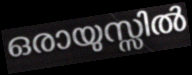
ഒരായുസ്സിൽ